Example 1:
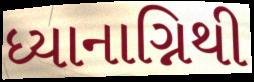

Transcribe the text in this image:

ધ્યાનાગ્નિથી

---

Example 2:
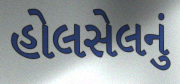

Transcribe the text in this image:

હોલસેલનું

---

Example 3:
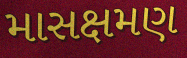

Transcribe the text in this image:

માસક્ષમણ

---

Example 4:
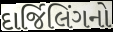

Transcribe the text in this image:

દાર્જિલિંગનો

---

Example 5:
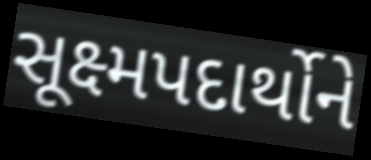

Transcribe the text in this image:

સૂક્ષ્મપદાર્થોને